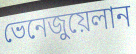
ভেনেজুয়েলান